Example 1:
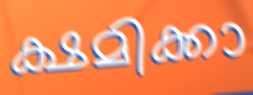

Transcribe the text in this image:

ക്ഷമിക്കാ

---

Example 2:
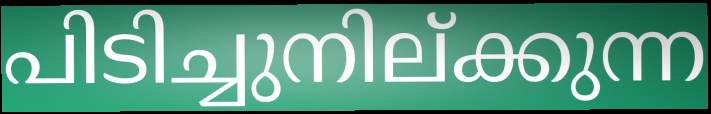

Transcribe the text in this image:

പിടിച്ചുനില്ക്കുന്ന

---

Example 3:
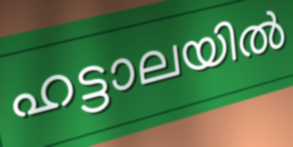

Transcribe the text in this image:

ഹട്ടാലയിൽ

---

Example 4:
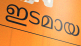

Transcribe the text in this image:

ഇടമായ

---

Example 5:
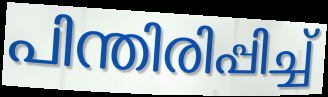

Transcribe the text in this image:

പിന്തിരിപ്പിച്ച്